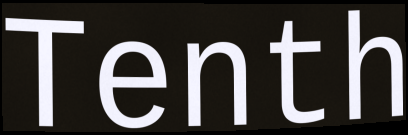
Tenth